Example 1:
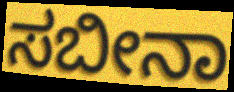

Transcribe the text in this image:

ಸಬೀನಾ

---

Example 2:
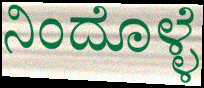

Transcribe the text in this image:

ನಿಂದೊಳ್ಳೆ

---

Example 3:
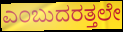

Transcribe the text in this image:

ಎಂಬುದರತ್ತಲೇ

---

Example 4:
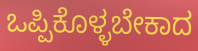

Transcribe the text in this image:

ಒಪ್ಪಿಕೊಳ್ಳಬೇಕಾದ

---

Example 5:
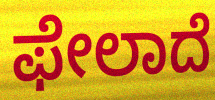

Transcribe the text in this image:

ಫೇಲಾದೆ